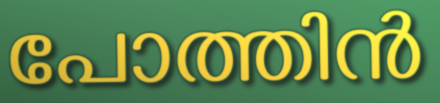
പോത്തിൻ